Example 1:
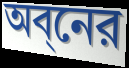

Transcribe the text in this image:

অব্নের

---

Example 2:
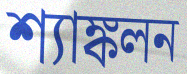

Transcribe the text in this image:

শ্যাঙ্কলন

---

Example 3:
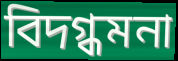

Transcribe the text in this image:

বিদগ্ধমনা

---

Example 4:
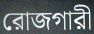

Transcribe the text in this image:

রোজগারী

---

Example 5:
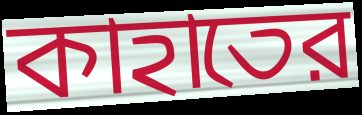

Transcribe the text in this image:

কাহাতের